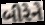
બીરેને